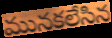
మునకలేసిన